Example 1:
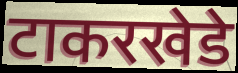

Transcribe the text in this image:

टाकरखेडे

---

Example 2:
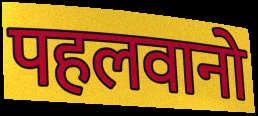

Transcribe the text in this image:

पहलवानो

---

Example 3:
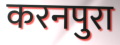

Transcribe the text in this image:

करनपुरा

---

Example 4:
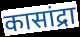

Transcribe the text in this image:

कासांद्रा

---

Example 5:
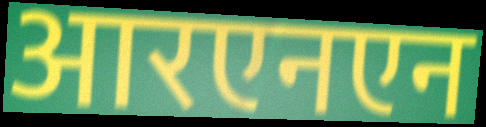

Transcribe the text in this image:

आरएनएन